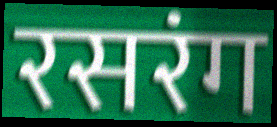
रसरंग